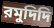
রমুদিদি